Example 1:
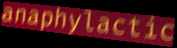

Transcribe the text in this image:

anaphylactic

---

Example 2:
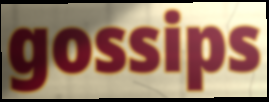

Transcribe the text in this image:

gossips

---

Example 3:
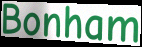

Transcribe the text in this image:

Bonham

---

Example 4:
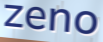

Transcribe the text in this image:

zeno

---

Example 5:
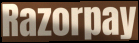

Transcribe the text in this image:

Razorpay